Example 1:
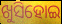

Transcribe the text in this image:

ଖୁସିହୋଇ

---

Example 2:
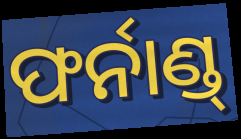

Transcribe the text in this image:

ଫର୍ନାଣ୍ଡ୍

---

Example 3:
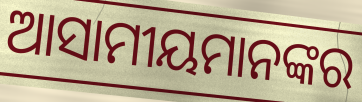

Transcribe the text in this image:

ଆସାମୀୟମାନଙ୍କର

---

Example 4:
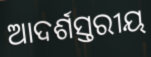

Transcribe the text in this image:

ଆଦର୍ଶସ୍ତରୀୟ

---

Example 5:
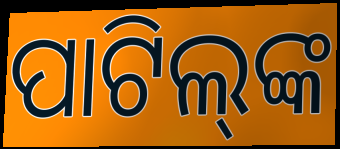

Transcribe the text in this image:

ପାଟିଲ୍‌ଙ୍କ